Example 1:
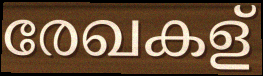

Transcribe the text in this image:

രേഖകള്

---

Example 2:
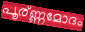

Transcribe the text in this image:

പൂര്ണ്ണമോദം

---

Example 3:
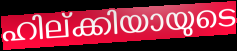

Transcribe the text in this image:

ഹില്ക്കിയായുടെ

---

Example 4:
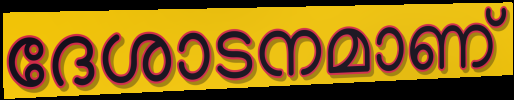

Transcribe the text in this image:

ദേശാടനമാണ്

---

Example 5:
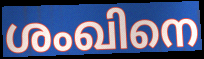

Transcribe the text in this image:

ശംഖിനെ